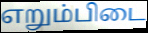
எறும்பிடை